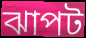
ঝাপট